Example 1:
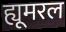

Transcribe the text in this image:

ह्यूमरल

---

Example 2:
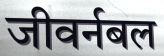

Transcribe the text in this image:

जीवर्नबल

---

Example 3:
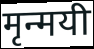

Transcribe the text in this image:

मृन्मयी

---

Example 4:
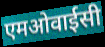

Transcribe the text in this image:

एमओवाईसी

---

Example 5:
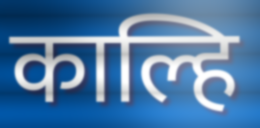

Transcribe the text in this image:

काल्हि